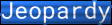
Jeopardy